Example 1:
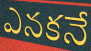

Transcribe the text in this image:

ఎనకనే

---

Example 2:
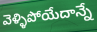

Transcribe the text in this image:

వెళ్ళిపోయేదాన్నే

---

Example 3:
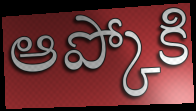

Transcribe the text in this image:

ఆప్కోకి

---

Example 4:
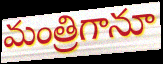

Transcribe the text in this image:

మంత్రిగానూ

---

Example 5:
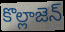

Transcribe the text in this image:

కొల్లాజెన్